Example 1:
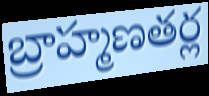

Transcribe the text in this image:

బ్రాహ్మణతర్ల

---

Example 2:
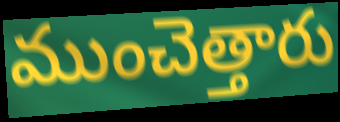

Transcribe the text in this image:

ముంచెత్తారు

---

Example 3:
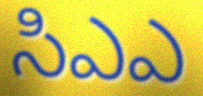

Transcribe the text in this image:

సిఎఎ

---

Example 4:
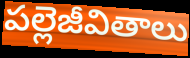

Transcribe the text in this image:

పల్లెజీవితాలు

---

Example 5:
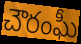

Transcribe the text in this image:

చౌరంఘీ